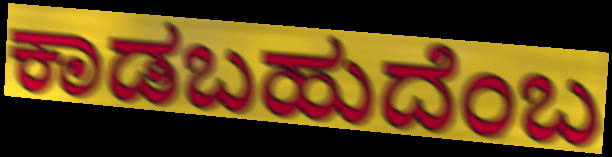
ಕಾಡಬಹುದೆಂಬ